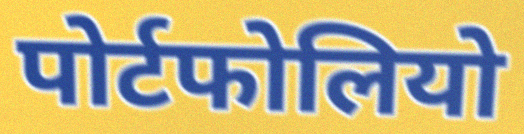
पोर्टफोलियो